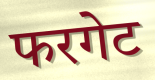
फरगेट